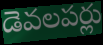
డెవలపర్లు